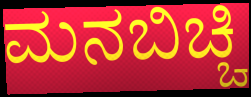
ಮನಬಿಚ್ಚಿ